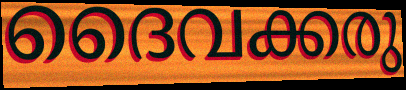
ദൈവക്കരു